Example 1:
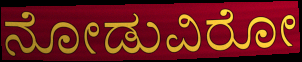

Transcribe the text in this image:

ನೋಡುವಿರೋ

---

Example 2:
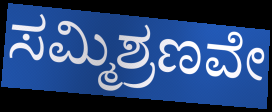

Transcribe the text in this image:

ಸಮ್ಮಿಶ್ರಣವೇ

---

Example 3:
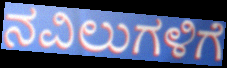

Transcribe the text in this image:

ನವಿಲುಗಳಿಗೆ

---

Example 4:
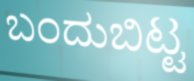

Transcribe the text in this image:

ಬಂದುಬಿಟ್ಟ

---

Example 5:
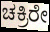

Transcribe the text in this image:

ಚಕ್ರಿರೇ